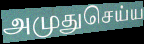
அமுதுசெய்ய